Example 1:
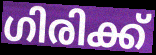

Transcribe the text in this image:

ഗിരിക്ക്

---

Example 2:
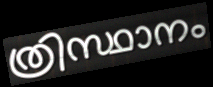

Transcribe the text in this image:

ത്രിസ്ഥാനം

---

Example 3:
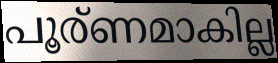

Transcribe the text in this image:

പൂര്ണമാകില്ല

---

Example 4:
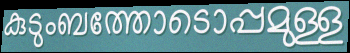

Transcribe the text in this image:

കുടുംബത്തോടൊപ്പമുള്ള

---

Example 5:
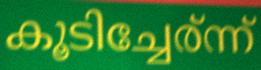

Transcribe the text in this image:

കൂടിച്ചേര്ന്ന്